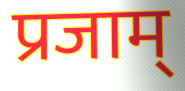
प्रजाम्